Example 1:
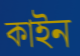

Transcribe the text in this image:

কাইন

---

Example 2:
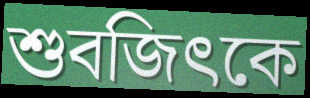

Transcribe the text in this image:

শুবজিৎকে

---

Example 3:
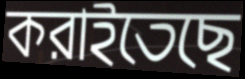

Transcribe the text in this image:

করাইতেছে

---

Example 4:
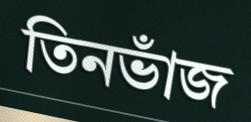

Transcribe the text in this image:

তিনভাঁজ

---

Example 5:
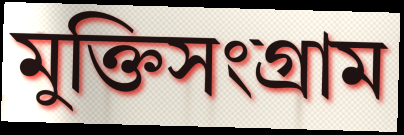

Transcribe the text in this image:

মুক্তিসংগ্রাম